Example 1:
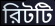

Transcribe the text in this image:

রিটটি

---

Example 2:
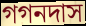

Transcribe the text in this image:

গগনদাস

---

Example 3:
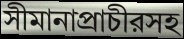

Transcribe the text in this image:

সীমানাপ্রাচীরসহ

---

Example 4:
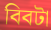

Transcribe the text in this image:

বিবটা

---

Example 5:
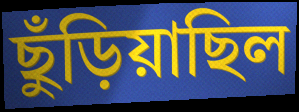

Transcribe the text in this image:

ছুঁড়িয়াছিল